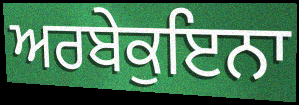
ਅਰਬੇਕੁਇਨਾ